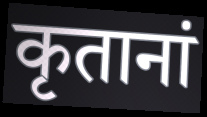
कृतानां